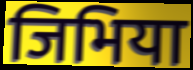
जिभिया